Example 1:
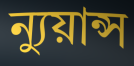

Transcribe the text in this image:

ন্যুয়ান্স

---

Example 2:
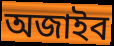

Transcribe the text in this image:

অজাইব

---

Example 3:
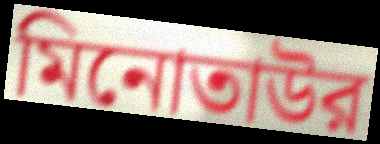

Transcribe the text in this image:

মিনোতাউর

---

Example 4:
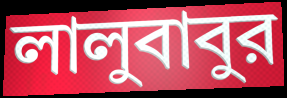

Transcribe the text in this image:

লালুবাবুর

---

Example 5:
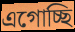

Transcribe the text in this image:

এগোচ্ছি